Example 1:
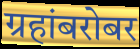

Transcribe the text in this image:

ग्रहांबरोबर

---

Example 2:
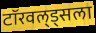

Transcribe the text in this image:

टॉरवल्ड्सला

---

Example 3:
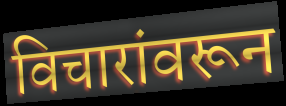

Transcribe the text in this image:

विचारांवरून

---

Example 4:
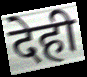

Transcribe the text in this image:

देही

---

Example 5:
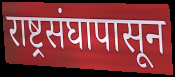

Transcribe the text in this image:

राष्ट्रसंघापासून